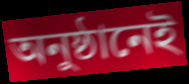
অনুষ্ঠানেই